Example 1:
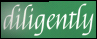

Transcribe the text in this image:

diligently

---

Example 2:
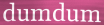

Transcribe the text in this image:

dumdum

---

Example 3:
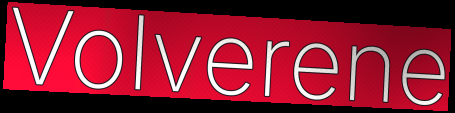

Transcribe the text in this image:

Volverene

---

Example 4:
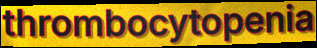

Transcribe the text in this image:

thrombocytopenia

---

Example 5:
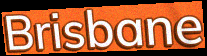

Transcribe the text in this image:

Brisbane